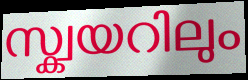
സ്ക്വയറിലും